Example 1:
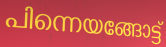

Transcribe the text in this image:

പിന്നെയങ്ങോട്ട്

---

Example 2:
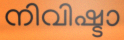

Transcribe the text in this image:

നിവിഷ്ടാ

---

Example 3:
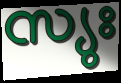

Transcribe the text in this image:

സ്യുഃ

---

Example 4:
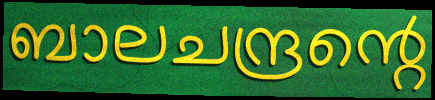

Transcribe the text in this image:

ബാലചന്ദ്രന്റെ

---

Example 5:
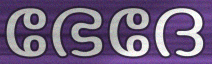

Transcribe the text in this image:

ഭേദേ